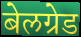
बेलग्रेड